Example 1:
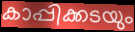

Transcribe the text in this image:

കാപ്പിക്കടയും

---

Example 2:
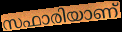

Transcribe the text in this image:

സഫാരിയാണ്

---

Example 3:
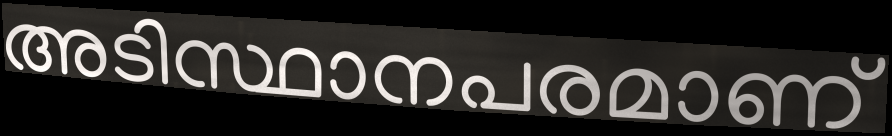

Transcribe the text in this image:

അടിസ്ഥാനപരമാണ്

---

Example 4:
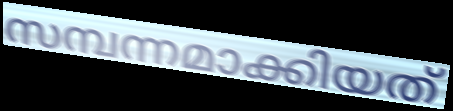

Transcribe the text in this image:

സമ്പന്നമാക്കിയത്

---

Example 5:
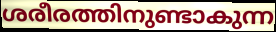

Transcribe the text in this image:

ശരീരത്തിനുണ്ടാകുന്ന